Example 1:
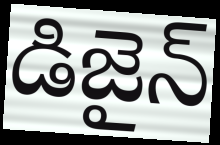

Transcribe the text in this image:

డిజైన్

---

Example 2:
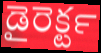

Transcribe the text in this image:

డైరెక్టర్‍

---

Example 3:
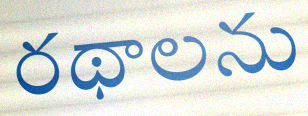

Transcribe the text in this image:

రథాలను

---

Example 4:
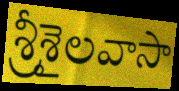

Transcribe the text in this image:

శ్రీశైలవాసా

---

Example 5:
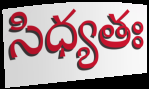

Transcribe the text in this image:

సిధ్యతః